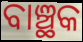
ବାଞ୍ଛକ